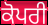
ਕੋਪਰੀ